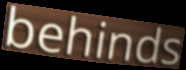
behinds